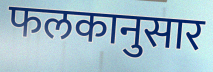
फलकानुसार